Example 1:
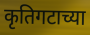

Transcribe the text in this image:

कृतिगटाच्या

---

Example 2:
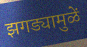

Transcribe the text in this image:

झगड्यामुळें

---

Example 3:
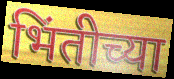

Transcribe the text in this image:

भिंतीच्या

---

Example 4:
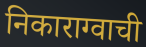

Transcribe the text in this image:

निकाराग्वाची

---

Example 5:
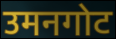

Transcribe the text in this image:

उमनगोट